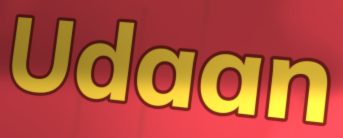
Udaan